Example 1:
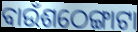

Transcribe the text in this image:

ବାଉଁଶଠେଙ୍ଗାଟା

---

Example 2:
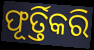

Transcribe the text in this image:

ଫୂର୍ତ୍ତିକରି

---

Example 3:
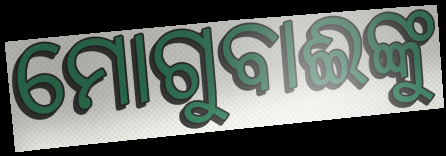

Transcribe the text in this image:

ମୋଗୁବାଈଙ୍କୁ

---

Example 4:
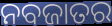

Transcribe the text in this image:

ନବଜାତର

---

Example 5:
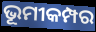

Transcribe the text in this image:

ଭୂମୀକମ୍ପର